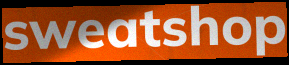
sweatshop